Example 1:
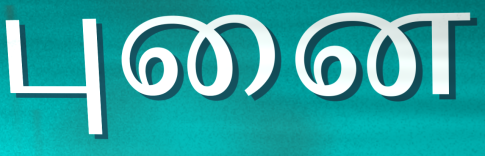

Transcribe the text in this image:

புனை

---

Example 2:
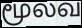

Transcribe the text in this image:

மூலவ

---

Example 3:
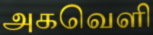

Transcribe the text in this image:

அகவெளி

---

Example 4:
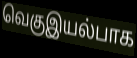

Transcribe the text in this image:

வெகுஇயல்பாக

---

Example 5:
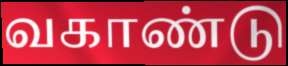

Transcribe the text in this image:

வகாண்டு